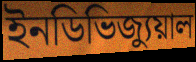
ইনডিভিজ্যুয়াল